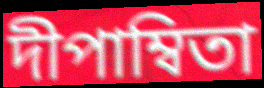
দীপাম্বিতা